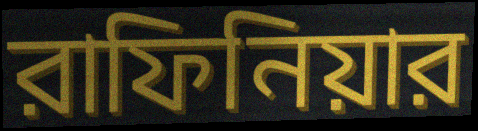
রাফিনিয়ার